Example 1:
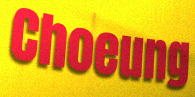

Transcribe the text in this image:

Choeung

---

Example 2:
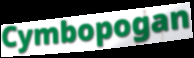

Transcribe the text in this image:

Cymbopogan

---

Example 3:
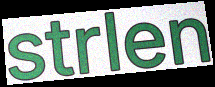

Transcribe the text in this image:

strlen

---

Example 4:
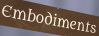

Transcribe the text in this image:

Embodiments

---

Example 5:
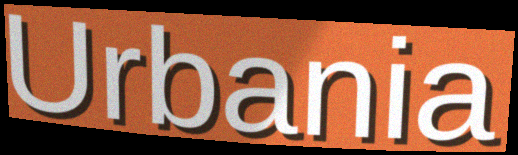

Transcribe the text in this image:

Urbania